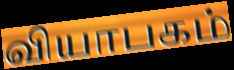
வியாபகம்